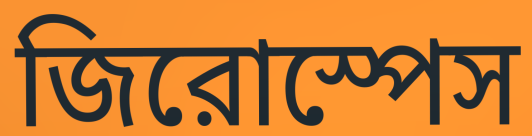
জিরোস্পেস